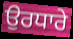
ਉਰਧਾਰੇ